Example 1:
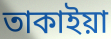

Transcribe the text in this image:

তাকাইয়া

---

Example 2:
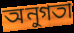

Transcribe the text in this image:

অনুগতা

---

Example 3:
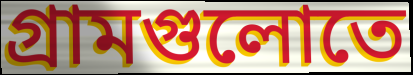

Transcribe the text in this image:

গ্রামগুলোতে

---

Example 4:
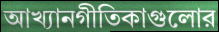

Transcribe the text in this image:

আখ্যানগীতিকাগুলোর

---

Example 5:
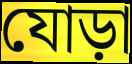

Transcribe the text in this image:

যোড়া